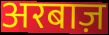
अरबाज़